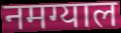
नमग्याल